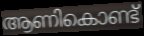
ആണികൊണ്ട്